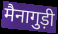
मैनागुड़ी